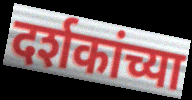
दर्शकांच्या